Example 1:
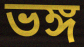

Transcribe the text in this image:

ভঙ্গ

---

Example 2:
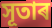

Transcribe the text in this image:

সূতাৰ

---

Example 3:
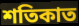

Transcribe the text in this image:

শতিকাত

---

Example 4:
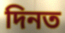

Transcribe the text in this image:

দিনত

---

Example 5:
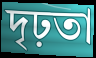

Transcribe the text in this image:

দৃঢ়তা